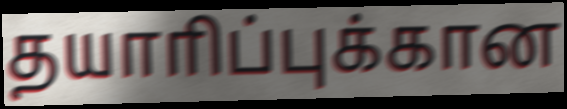
தயாரிப்புக்கான